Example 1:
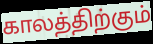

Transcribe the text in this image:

காலத்திற்கும்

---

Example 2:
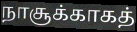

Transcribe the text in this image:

நாசூக்காகத்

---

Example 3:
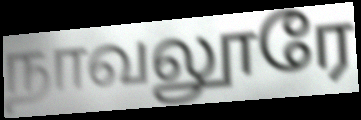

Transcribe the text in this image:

நாவலூரே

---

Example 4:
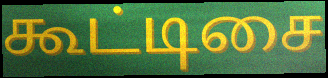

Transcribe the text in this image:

கூட்டிசை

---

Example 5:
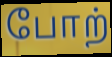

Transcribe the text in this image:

போற்